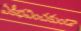
ఏకీభవించకుండా